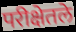
परीक्षेतले